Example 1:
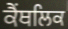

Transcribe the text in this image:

ਕੈਂਥਲਿਕ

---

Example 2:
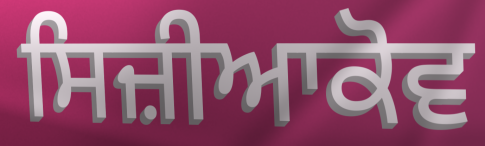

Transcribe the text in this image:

ਸਿਜ਼ੀਆਕੋਵ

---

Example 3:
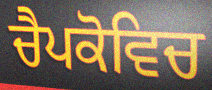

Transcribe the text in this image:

ਚੈਪਕੋਵਿਚ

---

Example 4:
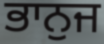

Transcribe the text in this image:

ਭਾਨੁਜ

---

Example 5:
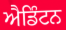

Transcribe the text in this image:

ਐਡਿੰਟਨ